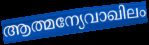
ആത്മന്യേവാഖിലം